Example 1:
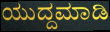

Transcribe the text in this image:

ಯುದ್ದಮಾಡಿ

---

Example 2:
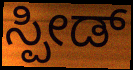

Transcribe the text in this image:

ಸ್ಪೀಡ್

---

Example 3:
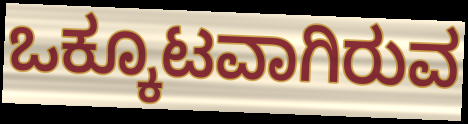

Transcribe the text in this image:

ಒಕ್ಕೂಟವಾಗಿರುವ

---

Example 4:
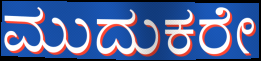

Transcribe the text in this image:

ಮುದುಕರೇ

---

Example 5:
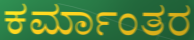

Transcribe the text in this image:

ಕರ್ಮಾಂತರ